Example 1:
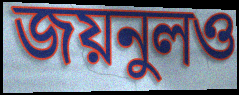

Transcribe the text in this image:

জয়নুলও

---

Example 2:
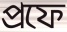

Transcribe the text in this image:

প্রফে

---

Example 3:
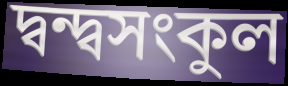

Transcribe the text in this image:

দ্বন্দ্বসংকুল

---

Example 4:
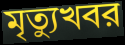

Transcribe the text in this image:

মৃত্যুখবর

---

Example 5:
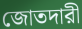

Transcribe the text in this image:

জোতদারী